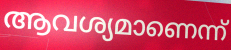
ആവശ്യമാണെന്ന്